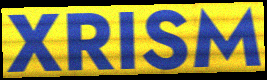
XRISM